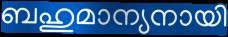
ബഹുമാന്യനായി